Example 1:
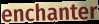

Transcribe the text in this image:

enchanter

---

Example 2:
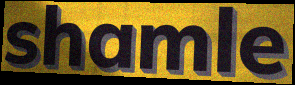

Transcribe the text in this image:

shamle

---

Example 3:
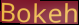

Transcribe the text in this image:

Bokeh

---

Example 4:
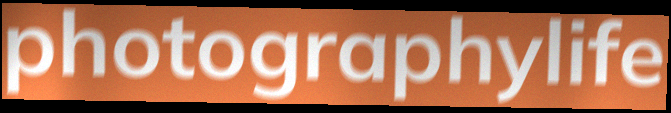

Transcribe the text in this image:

photographylife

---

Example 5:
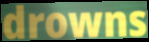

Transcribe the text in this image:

drowns